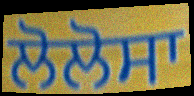
ਲੋਲੋਸਾ